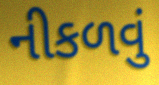
નીકળવું